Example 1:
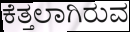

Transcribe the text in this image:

ಕೆತ್ತಲಾಗಿರುವ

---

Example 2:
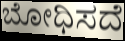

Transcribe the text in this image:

ಬೋಧಿಸದೆ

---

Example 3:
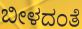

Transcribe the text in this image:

ಬೀಳದಂತೆ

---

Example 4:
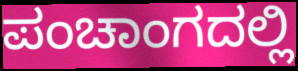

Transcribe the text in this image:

ಪಂಚಾಂಗದಲ್ಲಿ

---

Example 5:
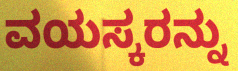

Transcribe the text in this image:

ವಯಸ್ಕರನ್ನು